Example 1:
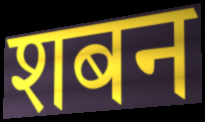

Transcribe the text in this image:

शबन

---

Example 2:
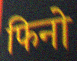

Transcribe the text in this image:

फिनो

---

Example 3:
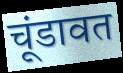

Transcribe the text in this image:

चूंडावत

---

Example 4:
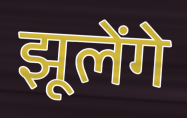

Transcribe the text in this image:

झूलेंगे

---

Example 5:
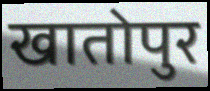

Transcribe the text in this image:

खातोपुर